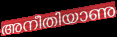
അനീതിയാണു